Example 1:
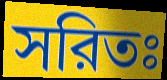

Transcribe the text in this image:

সরিতঃ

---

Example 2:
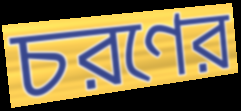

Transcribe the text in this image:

চরণের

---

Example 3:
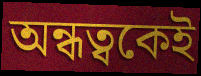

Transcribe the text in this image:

অন্ধত্বকেই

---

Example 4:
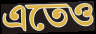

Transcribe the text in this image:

এতেও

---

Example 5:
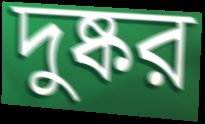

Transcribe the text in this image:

দুষ্কর